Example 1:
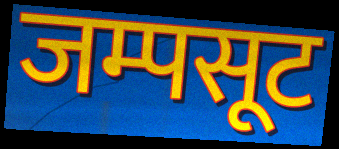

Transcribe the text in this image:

जम्पसूट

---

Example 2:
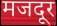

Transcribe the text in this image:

मजदूर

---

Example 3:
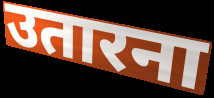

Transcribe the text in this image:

उतारना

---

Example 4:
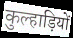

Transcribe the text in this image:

कुल्हाड़ियों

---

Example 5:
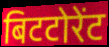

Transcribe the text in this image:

बिटटोरेंट